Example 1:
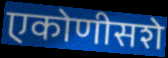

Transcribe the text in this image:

एकोणीसशे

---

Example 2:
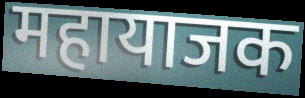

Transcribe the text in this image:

महायाजक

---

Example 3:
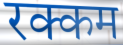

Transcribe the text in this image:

रक्कम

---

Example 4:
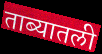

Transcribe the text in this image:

ताब्यातली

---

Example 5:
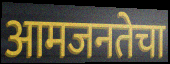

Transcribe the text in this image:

आमजनतेचा